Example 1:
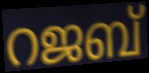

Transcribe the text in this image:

റജബ്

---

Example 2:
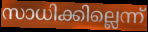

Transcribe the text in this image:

സാധിക്കില്ലെന്ന്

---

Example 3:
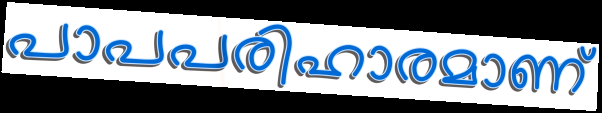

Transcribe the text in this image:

പാപപരിഹാരമാണ്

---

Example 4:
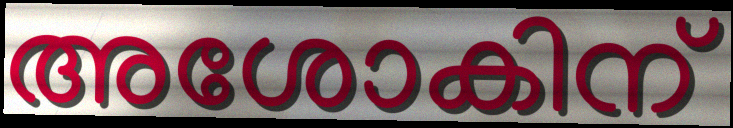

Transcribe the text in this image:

അശോകിന്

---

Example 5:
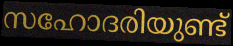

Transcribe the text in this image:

സഹോദരിയുണ്ട്